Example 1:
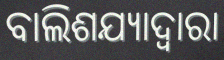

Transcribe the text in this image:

ବାଲିଶଯ୍ୟାଦ୍ଵାରା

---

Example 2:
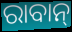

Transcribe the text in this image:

ରାବାନ୍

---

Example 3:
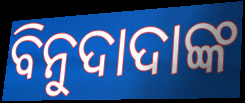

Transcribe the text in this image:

ବିନୁଦାଦାଙ୍କ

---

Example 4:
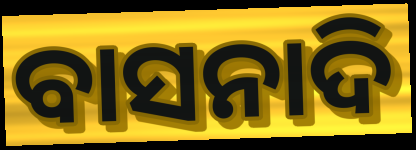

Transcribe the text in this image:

ବାସନାଦି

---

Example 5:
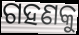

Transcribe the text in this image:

ଗହଣକୁ